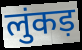
लुंकड़